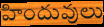
హిందువులు